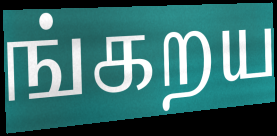
ங்கறய